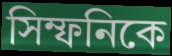
সিম্ফনিকে